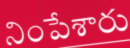
నింపేశారు